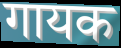
गायक